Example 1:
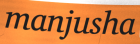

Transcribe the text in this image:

manjusha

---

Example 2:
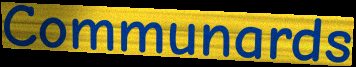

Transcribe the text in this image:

Communards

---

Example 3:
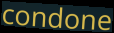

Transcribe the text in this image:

condone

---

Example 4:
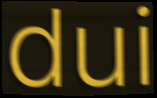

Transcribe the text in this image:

dui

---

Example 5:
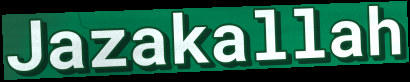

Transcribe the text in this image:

Jazakallah